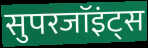
सुपरजॉइंट्स